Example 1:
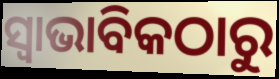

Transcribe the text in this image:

ସ୍ୱାଭାବିକଠାରୁ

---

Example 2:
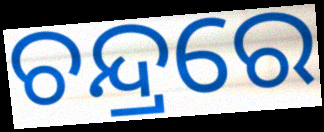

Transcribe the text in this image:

ଚନ୍ଦ୍ରରେ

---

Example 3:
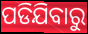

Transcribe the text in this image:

ପଡିଯିବାରୁ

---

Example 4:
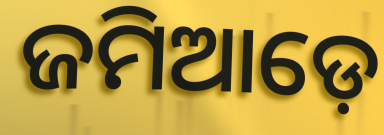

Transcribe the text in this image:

ଜମିଆଡ଼େ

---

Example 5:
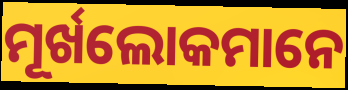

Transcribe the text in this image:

ମୂର୍ଖଲୋକମାନେ